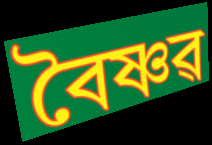
বৈষ্ণৱ